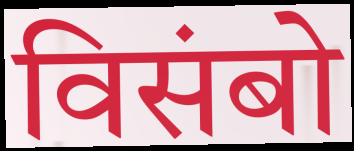
विसंबो